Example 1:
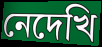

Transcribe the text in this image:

নেদেখি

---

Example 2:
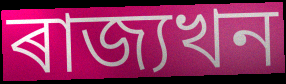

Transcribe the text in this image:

ৰাজ্যখন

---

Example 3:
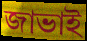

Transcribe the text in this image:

জাভাই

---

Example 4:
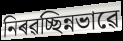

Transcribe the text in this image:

নিৰৱচ্ছিন্নভাৱে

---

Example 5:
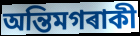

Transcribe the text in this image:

অন্তিমগৰাকী